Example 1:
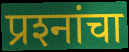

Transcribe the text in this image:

प्रश्‍नांचा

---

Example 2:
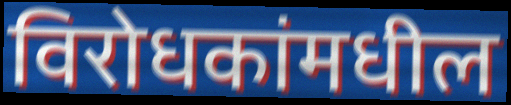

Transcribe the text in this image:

विरोधकांमधील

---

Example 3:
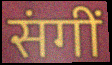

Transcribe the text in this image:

संगीं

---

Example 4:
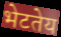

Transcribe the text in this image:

भेटतेय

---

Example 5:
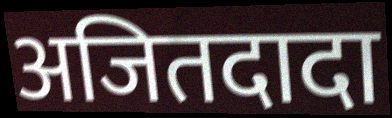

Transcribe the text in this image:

अजितदादा